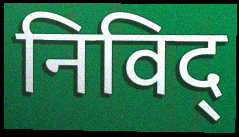
निविद्